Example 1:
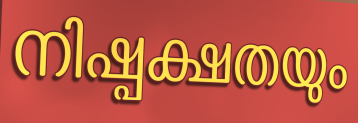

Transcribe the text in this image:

നിഷ്പക്ഷതയും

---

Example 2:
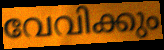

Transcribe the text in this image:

വേവിക്കും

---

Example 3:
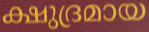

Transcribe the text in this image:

ക്ഷുദ്രമായ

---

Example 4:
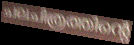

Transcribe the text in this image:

ചലചിത്രത്തിന്റെ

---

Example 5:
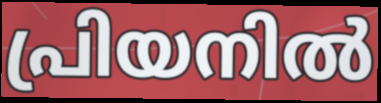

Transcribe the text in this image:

പ്രിയനിൽ